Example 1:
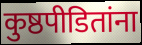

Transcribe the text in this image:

कुष्ठपीडितांना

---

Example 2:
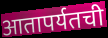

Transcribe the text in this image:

आतापर्यतची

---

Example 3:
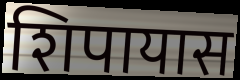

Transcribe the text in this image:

शिपायास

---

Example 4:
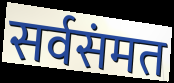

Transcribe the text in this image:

सर्वसंमत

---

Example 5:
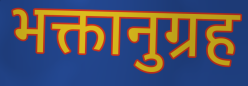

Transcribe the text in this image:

भक्तानुग्रह